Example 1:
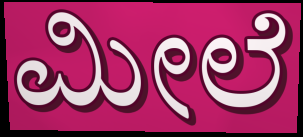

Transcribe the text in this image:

ಮೀಲೆ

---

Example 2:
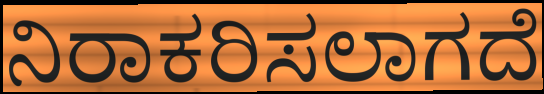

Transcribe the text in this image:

ನಿರಾಕರಿಸಲಾಗದೆ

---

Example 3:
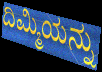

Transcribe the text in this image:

ದಿಮ್ಮಿಯನ್ನು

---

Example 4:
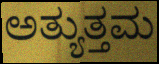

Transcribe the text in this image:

ಅತ್ಯುತ್ತಮ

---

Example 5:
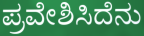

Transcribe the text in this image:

ಪ್ರವೇಶಿಸಿದೆನು